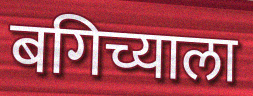
बगिच्याला